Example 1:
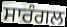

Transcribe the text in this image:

ਸਾਰੰਗਲ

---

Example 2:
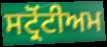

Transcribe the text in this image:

ਸਟ੍ਰੋਂਟੀਅਮ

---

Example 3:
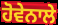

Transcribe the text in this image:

ਹੋਵੇਨਾਲੇ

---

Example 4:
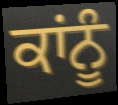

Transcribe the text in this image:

ਕਾਂਨੂੰ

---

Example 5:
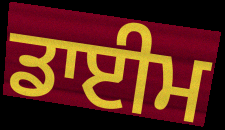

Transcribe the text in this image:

ਡਾਈਮ